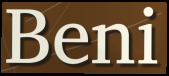
Beni